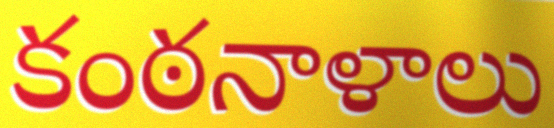
కంఠనాళాలు